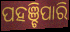
ପହଞ୍ଚିପାରି